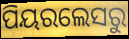
ପିୟରଲେସରୁ